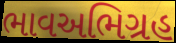
ભાવઅભિગ્રહ